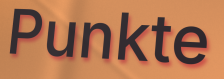
Punkte